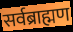
सर्वब्राह्मण